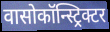
वासोकॉन्स्ट्रिक्टर